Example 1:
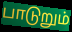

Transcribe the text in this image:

பாடுறும்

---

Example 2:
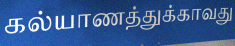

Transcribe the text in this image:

கல்யாணத்துக்காவது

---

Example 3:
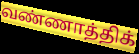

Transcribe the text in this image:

வண்ணாத்திக்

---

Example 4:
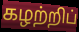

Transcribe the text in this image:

கழற்றிப்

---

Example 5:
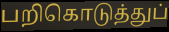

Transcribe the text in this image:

பறிகொடுத்துப்